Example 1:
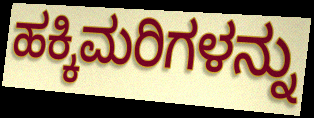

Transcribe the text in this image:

ಹಕ್ಕಿಮರಿಗಳನ್ನು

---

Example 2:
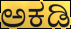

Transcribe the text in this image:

ಅಕಡಿ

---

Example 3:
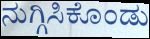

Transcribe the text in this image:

ನುಗ್ಗಿಸಿಕೊಂಡು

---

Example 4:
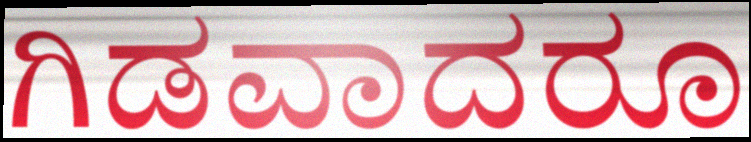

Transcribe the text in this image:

ಗಿಡವಾದರೂ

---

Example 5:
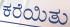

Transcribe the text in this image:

ಕರೆಯಿತು